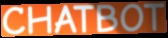
CHATBOT